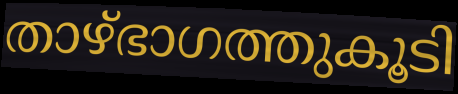
താഴ്ഭാഗത്തുകൂടി